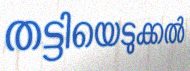
തട്ടിയെടുക്കൽ